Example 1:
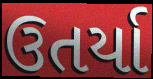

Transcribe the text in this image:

ઉતર્યા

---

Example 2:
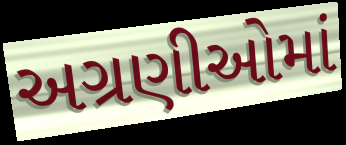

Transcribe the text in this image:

અગ્રણીઓમાં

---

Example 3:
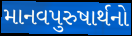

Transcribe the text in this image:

માનવપુરુષાર્થનો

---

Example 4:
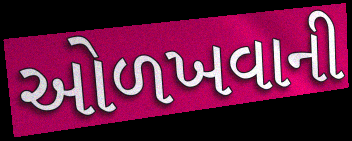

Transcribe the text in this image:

ઓળખવાની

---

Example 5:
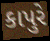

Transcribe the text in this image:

કાપુરે